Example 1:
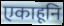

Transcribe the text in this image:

एकाहूनि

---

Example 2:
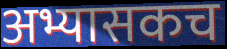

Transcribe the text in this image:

अभ्यासकच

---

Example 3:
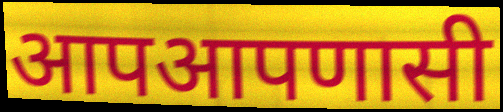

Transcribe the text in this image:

आपआपणासी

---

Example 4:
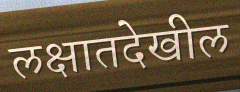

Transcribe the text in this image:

लक्षातदेखील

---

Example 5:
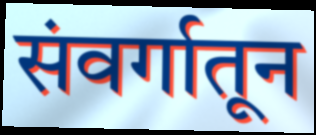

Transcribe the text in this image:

संवर्गातून